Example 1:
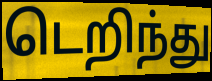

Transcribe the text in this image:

டெறிந்து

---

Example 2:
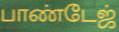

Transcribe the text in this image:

பாண்டேஜ்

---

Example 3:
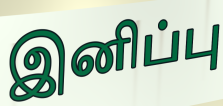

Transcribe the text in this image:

இனிப்பு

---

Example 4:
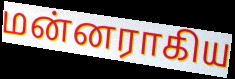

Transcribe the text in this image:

மன்னராகிய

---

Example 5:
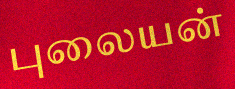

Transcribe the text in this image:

புலையன்